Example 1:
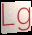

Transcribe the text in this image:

Lg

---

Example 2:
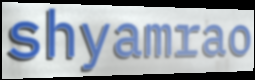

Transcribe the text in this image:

shyamrao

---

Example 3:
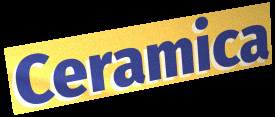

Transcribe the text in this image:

Ceramica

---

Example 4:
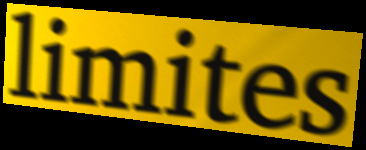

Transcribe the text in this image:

limites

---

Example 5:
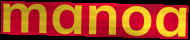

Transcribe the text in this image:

manoa